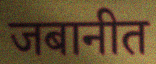
जबानीत